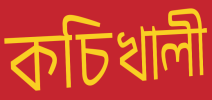
কচিখালী